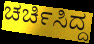
ಚರ್ಚಿಸಿದ್ದ